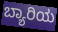
ಬ್ಯಾರಿಯ